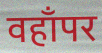
वहाँपर